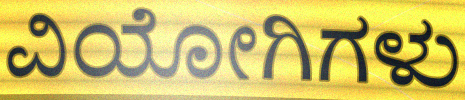
ವಿಯೋಗಿಗಳು